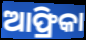
ଆଫ୍ରିକା